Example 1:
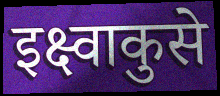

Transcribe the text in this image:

इक्ष्वाकुसे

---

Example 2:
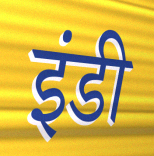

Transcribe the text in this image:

इंडी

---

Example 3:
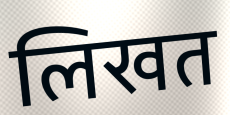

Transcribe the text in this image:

लिखत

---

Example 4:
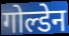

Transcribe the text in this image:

गोल्डेन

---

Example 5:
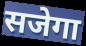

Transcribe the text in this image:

सजेगा